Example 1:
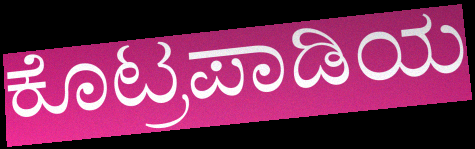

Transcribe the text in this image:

ಕೊಟ್ರಪಾಡಿಯ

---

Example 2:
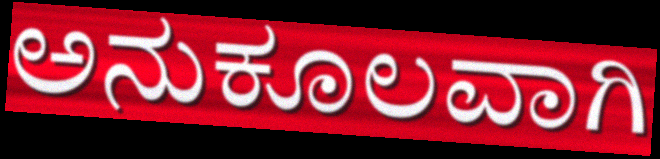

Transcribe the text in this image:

ಅನುಕೂಲವಾಗಿ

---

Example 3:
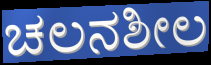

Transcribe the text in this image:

ಚಲನಶೀಲ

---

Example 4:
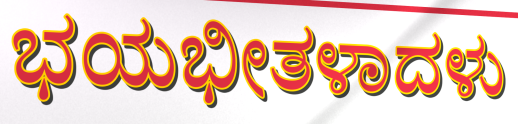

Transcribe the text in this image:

ಭಯಭೀತಳಾದಳು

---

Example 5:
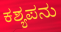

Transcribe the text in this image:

ಕಶ್ಯಪನು